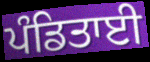
ਪੰਡਿਤਾਈ